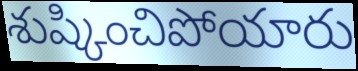
శుష్కించిపోయారు